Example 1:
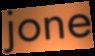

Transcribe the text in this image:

jone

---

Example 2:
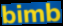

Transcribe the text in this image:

bimb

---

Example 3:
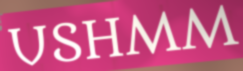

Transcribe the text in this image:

USHMM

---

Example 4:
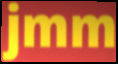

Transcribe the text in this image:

jmm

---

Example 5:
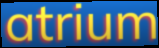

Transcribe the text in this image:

atrium